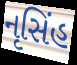
નૃસિંહ